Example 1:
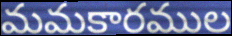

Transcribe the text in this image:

మమకారముల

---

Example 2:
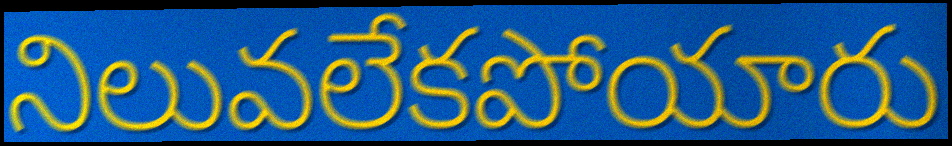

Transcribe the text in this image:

నిలువలేకపోయారు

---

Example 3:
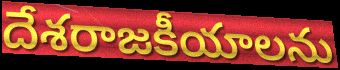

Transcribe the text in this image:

దేశరాజకీయాలను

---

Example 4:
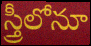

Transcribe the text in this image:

స్త్రీలోనూ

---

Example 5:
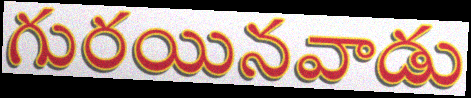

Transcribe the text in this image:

గురయినవాడు